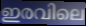
ഇരവിലെ